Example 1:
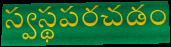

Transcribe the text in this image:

స్వస్థపరచడం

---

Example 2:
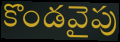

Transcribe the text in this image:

కొండవైపు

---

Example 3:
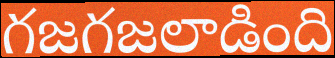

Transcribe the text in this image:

గజగజలాడింది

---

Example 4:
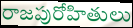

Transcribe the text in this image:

రాజపురోహితులు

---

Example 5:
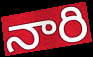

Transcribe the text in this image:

నారి